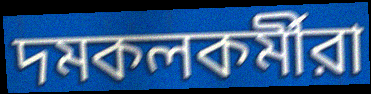
দমকলকর্মীরা